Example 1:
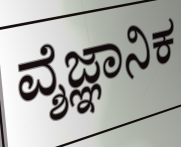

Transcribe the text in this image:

ವ್ಶೆಜ್ಞಾನಿಕ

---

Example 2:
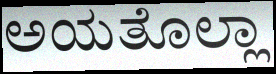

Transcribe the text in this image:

ಅಯತೊಲ್ಲಾ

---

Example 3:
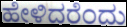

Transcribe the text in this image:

ಹೇಳಿದರೆಂದು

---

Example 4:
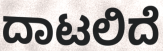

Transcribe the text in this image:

ದಾಟಲಿದೆ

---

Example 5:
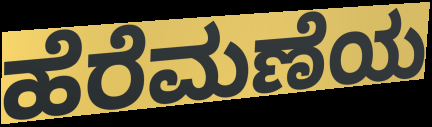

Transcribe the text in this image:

ಹೆರೆಮಣೆಯ